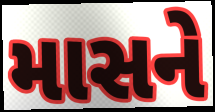
માસને